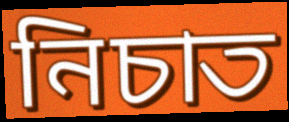
নিচাত